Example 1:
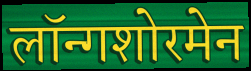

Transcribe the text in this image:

लॉन्गशोरमेन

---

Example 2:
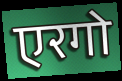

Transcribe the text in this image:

एरगो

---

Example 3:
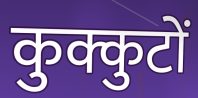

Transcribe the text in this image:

कुक्कुटों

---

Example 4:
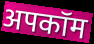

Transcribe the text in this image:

अपकॉम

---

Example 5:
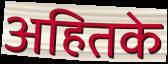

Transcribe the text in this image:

अहितके